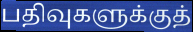
பதிவுகளுக்குத்